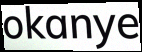
okanye